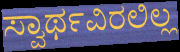
ಸ್ವಾರ್ಥವಿರಲಿಲ್ಲ